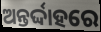
ଅନ୍ତର୍ଦ୍ଦାହରେ